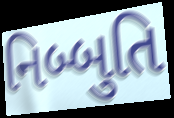
નિબ્બુતિ